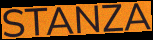
STANZA